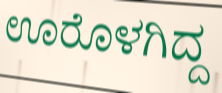
ಊರೊಳಗಿದ್ದ